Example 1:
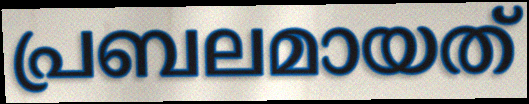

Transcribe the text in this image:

പ്രബലമായത്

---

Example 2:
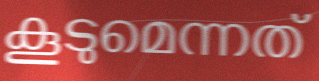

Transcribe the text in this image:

കൂടുമെന്നത്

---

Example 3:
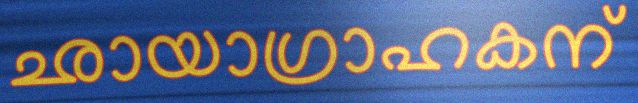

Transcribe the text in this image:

ഛായാഗ്രാഹകന്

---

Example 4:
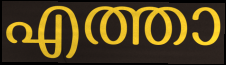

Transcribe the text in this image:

എത്താ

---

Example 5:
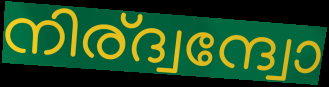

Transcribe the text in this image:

നിര്ദ്വന്ദ്വോ